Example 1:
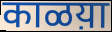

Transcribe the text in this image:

काळय़ा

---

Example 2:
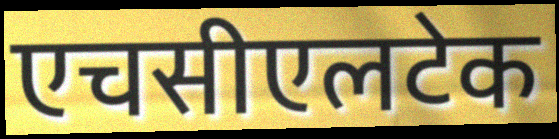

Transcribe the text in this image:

एचसीएलटेक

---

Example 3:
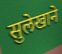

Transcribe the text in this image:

सुलेखाने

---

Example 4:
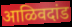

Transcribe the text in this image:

आळिवदांड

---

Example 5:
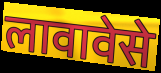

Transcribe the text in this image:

लावावेसे